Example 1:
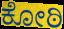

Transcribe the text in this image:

ಕೋಠಿ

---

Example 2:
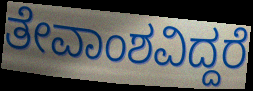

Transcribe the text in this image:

ತೇವಾಂಶವಿದ್ದರೆ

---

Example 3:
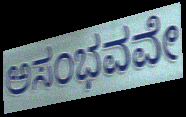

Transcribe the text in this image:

ಅಸಂಭವವೇ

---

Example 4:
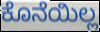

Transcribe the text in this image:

ಕೊನೆಯಿಲ್ಲ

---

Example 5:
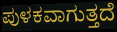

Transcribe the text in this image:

ಪುಳಕವಾಗುತ್ತದೆ